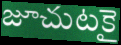
జూచుటకై